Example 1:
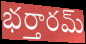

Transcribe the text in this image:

భర్తారమ్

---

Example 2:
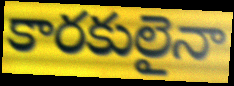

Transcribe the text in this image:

కారకులైనా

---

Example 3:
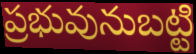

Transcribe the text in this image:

ప్రభువునుబట్టి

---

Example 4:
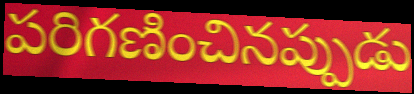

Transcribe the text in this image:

పరిగణించినప్పుడు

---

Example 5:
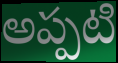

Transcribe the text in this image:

అప్పటి